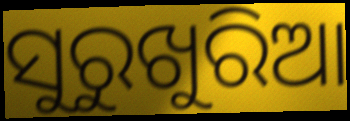
ସୁରୁଖୁରିଆ